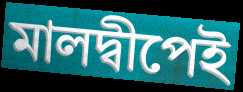
মালদ্বীপেই